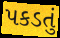
પકડતું